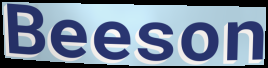
Beeson